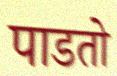
पाडतो